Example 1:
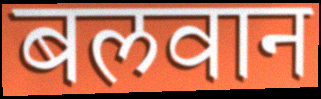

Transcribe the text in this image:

बलवान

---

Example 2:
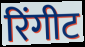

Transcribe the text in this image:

रिंगीट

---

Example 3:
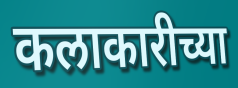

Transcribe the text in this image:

कलाकारीच्या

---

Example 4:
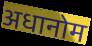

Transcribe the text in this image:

अधानोम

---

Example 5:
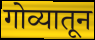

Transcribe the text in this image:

गोव्यातून